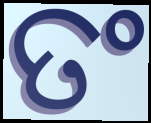
ତଂ